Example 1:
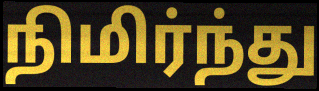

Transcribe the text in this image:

நிமிர்ந்து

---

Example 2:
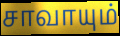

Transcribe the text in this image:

சாவாயும்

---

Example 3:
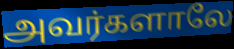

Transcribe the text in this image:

அவர்களாலே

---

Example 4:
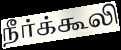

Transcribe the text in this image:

நீர்க்கூலி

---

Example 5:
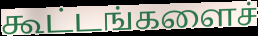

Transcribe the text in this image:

கூட்டங்களைச்